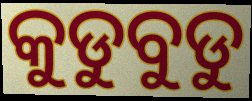
କୁଡୁବୁଡୁ